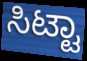
ಸಿಟ್ಟಾ